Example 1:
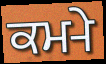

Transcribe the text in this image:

ਕਮ੍ਮੇ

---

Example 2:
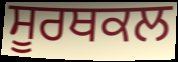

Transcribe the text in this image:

ਸੂਰਥਕਲ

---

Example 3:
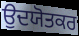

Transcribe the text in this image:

ਉਦਯੋਤਕਰ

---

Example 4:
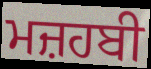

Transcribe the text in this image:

ਮਜ਼ਹਬੀ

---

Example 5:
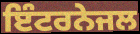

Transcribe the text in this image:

ਇੰਟਰਨੇਜਲ